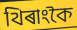
থিৰাংকৈ